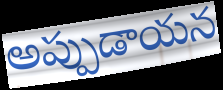
అప్పుడాయన